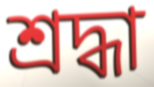
শ্রদ্ধা